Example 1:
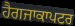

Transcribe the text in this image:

ਹੈਗਜਾਕਾਪਟਰ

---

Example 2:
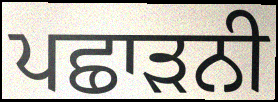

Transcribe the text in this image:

ਪਛਾੜਨੀ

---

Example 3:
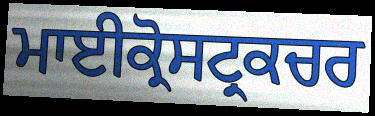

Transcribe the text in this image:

ਮਾਈਕ੍ਰੋਸਟ੍ਰਕਚਰ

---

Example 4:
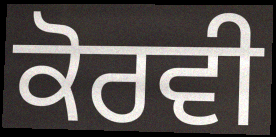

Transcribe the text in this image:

ਕੋਰਵੀ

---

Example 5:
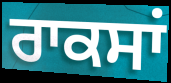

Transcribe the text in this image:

ਰਾਕਸਾਂ